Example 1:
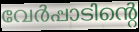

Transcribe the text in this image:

വേർപ്പാടിന്റെ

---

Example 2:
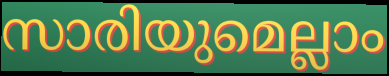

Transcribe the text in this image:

സാരിയുമെല്ലാം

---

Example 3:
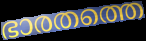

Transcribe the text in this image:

ഭാരതത്തെ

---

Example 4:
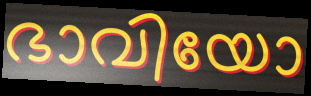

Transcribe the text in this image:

ഭാവിയോ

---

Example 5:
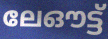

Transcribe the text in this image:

ലേഔട്ട്